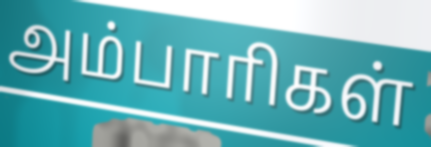
அம்பாரிகள்